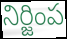
నిర్జింప